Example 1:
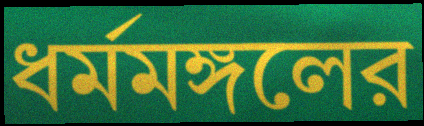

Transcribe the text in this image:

ধর্মমঙ্গলের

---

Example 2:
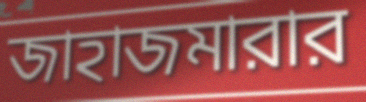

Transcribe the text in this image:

জাহাজমারার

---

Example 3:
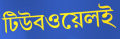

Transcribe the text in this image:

টিউবওয়েলই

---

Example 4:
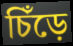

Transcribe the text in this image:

চিঁড়ে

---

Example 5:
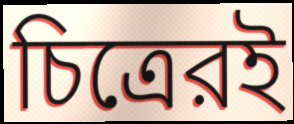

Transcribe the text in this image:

চিত্রেরই